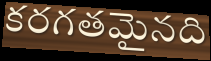
కరగతమైనది